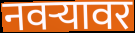
नवर्‍यावर